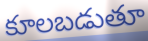
కూలబడుతూ